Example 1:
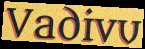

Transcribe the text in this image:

Vadivu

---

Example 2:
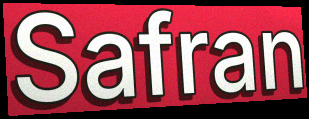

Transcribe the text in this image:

Safran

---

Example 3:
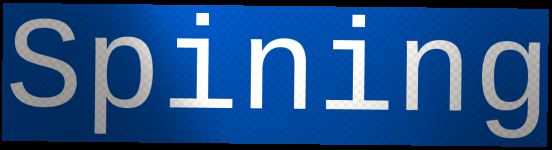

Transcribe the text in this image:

Spining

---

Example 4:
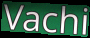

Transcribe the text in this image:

Vachi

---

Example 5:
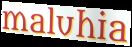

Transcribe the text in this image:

maluhia